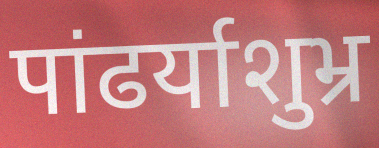
पांढर्याशुभ्र